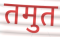
तमुत